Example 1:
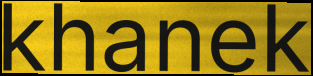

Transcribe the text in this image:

khanek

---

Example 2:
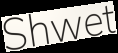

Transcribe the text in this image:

Shwet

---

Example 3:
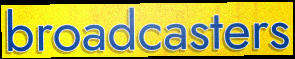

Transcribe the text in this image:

broadcasters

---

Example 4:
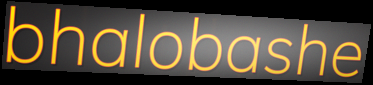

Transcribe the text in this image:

bhalobashe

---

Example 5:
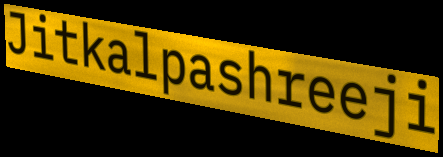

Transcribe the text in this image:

Jitkalpashreeji